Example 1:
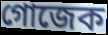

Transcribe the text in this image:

গোজেক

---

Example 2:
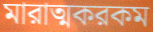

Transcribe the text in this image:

মারাত্মকরকম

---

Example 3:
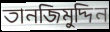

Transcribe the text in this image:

তানজিমুদ্দিন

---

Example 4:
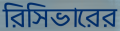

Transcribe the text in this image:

রিসিভারের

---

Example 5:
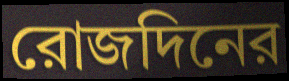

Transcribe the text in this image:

রোজদিনের